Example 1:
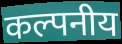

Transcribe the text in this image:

कल्पनीय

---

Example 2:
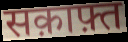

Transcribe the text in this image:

सक़ाफ़्त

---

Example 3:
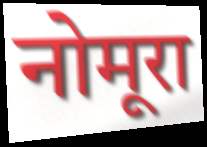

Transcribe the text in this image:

नोमूरा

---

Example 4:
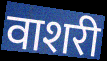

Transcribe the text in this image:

वाशरी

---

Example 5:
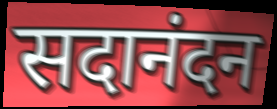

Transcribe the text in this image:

सदानंदन